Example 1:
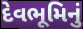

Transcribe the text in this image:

દેવભૂમિનું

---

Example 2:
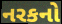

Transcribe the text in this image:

નરકનો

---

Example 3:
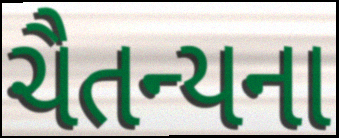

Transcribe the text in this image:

ચૈતન્યના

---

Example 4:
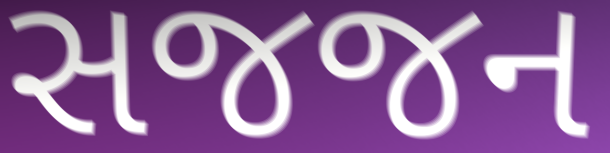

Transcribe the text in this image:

સજજન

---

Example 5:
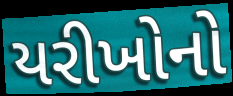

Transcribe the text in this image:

યરીખોનો